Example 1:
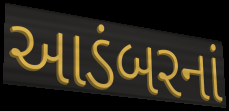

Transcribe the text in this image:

આડંબરનાં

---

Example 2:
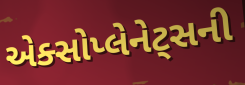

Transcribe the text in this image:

એક્સોપ્લેનેટ્સની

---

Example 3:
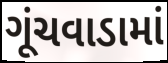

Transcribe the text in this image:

ગૂંચવાડામાં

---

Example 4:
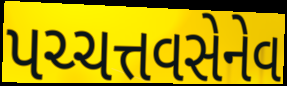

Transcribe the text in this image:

પચ્ચત્તવસેનેવ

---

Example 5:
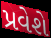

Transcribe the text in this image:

પ્રવેશે